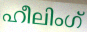
ഹീലിംഗ്